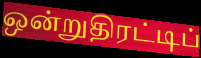
ஒன்றுதிரட்டிப்